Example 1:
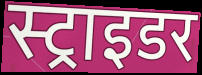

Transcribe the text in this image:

स्ट्राइडर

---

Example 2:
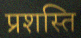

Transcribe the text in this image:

प्रशस्ति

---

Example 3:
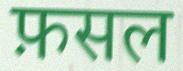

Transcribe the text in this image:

फ़सल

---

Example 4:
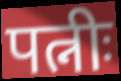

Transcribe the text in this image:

पत्नीः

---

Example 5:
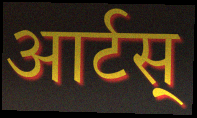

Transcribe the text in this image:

आर्टस्